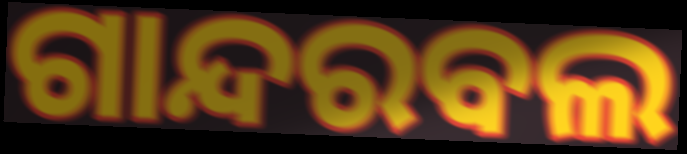
ଗାନ୍ଦରବଲ